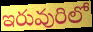
ఇరువురిలో